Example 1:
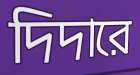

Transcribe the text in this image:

দিদারে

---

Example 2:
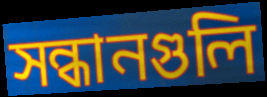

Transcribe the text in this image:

সন্ধানগুলি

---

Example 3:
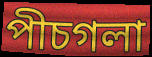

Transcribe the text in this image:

পীচগলা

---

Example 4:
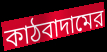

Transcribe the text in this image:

কাঠবাদামের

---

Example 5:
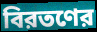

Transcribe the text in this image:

বিরতণের